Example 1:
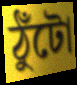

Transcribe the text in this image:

ঠুঁটো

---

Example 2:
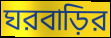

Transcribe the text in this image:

ঘরবাড়ির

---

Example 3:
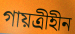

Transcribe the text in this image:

গায়ত্রীহীন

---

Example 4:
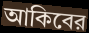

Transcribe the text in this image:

আকিবের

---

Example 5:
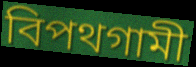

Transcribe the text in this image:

বিপথগামী